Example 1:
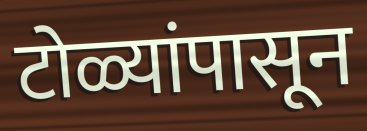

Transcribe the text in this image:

टोळ्यांपासून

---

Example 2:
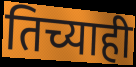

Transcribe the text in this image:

तिच्याही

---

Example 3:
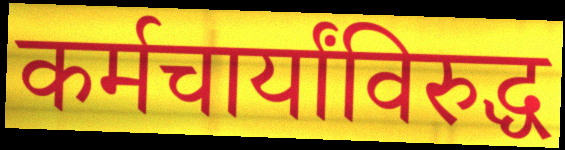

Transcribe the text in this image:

कर्मचार्यांविरुद्ध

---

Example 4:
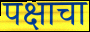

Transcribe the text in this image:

पक्षाचा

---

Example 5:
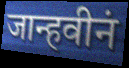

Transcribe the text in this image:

जान्हवीनं